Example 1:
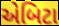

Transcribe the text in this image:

એબિટા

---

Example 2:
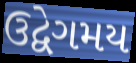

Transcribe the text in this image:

ઉદ્વેગમય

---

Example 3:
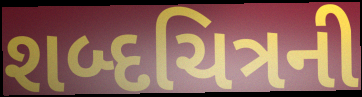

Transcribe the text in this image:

શબ્દચિત્રની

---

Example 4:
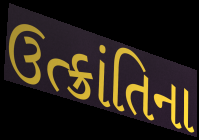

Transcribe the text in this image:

ઉત્ક્રાંતિના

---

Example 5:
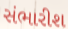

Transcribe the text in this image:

સંભારીશ